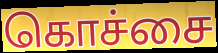
கொச்சை